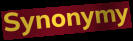
Synonymy